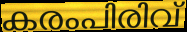
കരംപിരിവ്